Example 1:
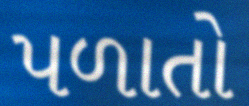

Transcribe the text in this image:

પળાતો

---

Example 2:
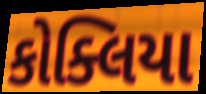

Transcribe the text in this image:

કોક્લિયા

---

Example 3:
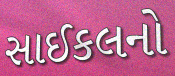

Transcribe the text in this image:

સાઈકલનો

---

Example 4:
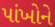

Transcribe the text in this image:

પાંખોને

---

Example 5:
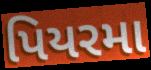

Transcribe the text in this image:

પિયરમા